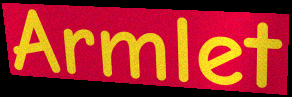
Armlet